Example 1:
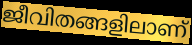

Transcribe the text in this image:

ജീവിതങ്ങളിലാണ്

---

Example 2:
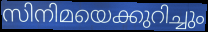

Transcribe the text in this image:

സിനിമയെക്കുറിച്ചും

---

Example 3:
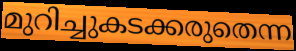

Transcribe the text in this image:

മുറിച്ചുകടക്കരുതെന്ന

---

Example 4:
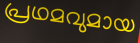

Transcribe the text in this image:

പ്രഥമവുമായ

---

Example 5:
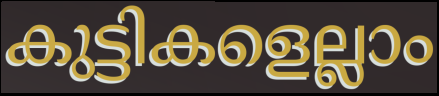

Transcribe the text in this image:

കുട്ടികളെല്ലാം